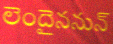
లెందైననున్